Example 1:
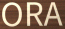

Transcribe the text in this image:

ORA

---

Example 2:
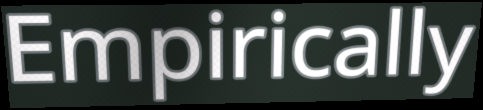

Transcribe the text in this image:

Empirically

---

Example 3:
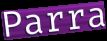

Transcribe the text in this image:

Parra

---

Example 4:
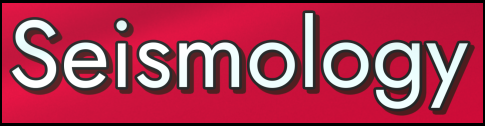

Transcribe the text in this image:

Seismology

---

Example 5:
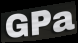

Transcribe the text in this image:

GPa